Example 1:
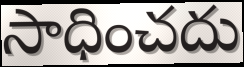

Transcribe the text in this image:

సాధించదు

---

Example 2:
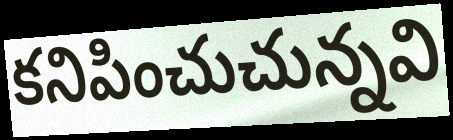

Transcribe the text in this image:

కనిపించుచున్నవి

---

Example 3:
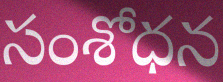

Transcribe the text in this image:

సంశోధన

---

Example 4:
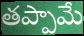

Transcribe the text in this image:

తప్పామే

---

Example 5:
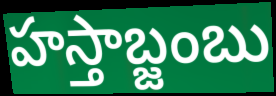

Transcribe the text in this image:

హస్తాబ్జంబు